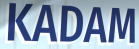
KADAM